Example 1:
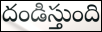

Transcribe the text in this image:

దండిస్తుంది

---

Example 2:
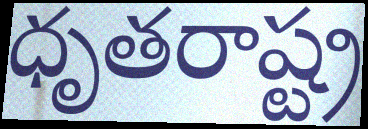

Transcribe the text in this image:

ధృతరాష్ట్ర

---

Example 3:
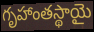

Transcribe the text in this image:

గృహాంతస్థాయై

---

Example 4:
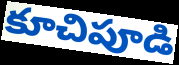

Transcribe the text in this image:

కూచిపూడి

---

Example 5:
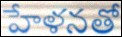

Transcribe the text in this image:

హేళనతో